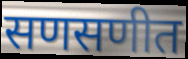
सणसणीत